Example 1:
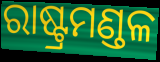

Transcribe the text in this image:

ରାଷ୍ଟ୍ରମଣ୍ଡଳ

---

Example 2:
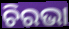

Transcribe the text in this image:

ଚିରଭା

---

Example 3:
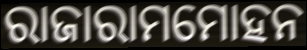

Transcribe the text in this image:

ରାଜାରାମମୋହନ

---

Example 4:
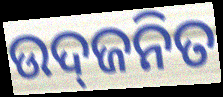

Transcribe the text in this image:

ଉଦ୍‌ଜନିତ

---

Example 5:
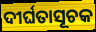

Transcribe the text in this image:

ଦୀର୍ଘତାସୂଚକ